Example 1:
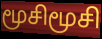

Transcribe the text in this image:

மூசிமூசி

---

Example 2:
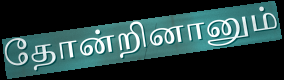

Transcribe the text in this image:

தோன்றினானும்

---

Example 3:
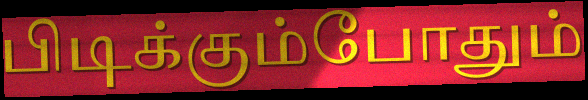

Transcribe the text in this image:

பிடிக்கும்போதும்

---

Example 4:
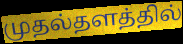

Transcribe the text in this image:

முதல்தளத்தில்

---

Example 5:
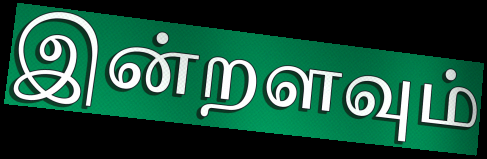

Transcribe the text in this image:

இன்றளவும்